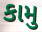
કામુ